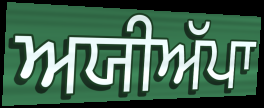
ਅਯੀਅੱਪਾ